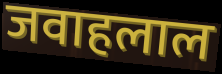
जवाहलाल